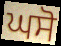
ਘਸੋ